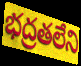
భద్రతలేని